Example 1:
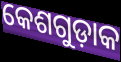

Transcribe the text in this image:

କେଶଗୁଡ଼ାକ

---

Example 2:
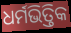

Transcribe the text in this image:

ଧର୍ମଭିତ୍ତିକ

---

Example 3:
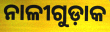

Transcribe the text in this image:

ନାଳୀଗୁଡ଼ାକ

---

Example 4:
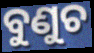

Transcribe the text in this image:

ବୁଣୁଚ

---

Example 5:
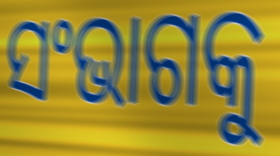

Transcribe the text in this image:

ସଂଭାଗକୁ